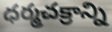
ధర్మచక్రాన్ని